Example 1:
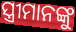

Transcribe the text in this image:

ସ୍ତ୍ରୀମାନଙ୍କୁ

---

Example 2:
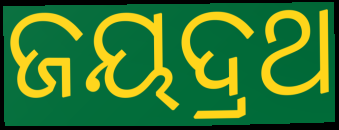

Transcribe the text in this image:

ଜୟଦ୍ରଥ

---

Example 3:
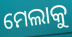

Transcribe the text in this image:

ମେଲାକୁ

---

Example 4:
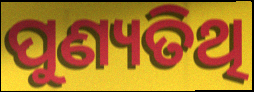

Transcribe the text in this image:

ପୁଣ୍ୟତିଥି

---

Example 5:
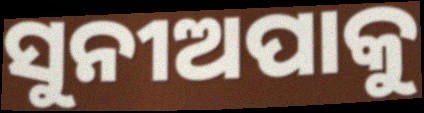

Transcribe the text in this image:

ସୁନୀଅପାକୁ